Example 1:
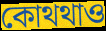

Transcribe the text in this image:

কোথথাও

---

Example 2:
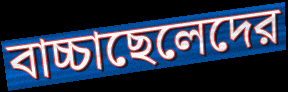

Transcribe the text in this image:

বাচ্চাছেলেদের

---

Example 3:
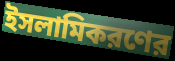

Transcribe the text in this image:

ইসলামিকরণের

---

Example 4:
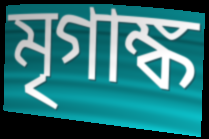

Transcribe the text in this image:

মৃগাঙ্ক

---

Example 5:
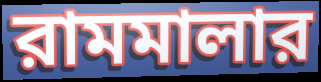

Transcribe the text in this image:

রামমালার